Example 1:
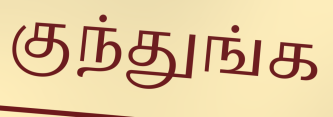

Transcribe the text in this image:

குந்துங்க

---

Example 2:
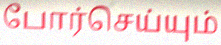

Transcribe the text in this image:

போர்செய்யும்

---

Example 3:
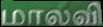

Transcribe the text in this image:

மாலவி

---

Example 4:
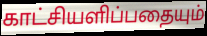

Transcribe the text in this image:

காட்சியளிப்பதையும்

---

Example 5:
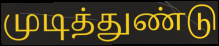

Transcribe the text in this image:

முடித்துண்டு